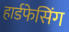
हार्डफेसिंग